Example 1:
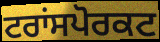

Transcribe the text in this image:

ਟਰਾਂਸਪੋਰਕਟ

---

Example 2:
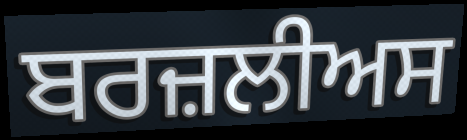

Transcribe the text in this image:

ਬਰਜ਼ਲੀਅਸ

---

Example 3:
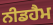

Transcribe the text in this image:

ਨੀਡਹੈਮ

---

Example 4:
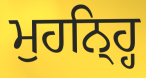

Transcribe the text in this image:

ਮੁਹਨ੍ਹ੍ਹਿ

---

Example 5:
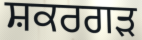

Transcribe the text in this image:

ਸ਼ਕਰਗੜ